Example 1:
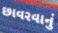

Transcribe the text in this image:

છાવરવાનું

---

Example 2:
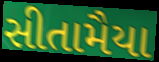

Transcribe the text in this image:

સીતામૈયા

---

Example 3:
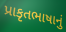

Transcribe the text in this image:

પ્રાકૃતભાષાનું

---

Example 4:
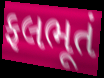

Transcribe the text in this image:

ફલભૂતં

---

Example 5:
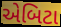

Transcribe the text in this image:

એબિટા